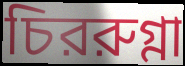
চিররুগ্না